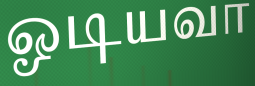
ஓடியவா